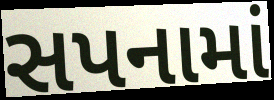
સપનામાં